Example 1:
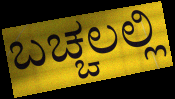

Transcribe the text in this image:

ಬಚ್ಚಲಲ್ಲಿ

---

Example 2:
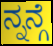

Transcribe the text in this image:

ನ್ನನ್ಗೆ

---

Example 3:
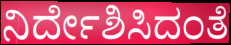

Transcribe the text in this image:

ನಿರ್ದೇಶಿಸಿದಂತೆ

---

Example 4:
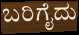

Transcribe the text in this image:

ಬರಿಗೈದು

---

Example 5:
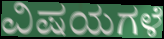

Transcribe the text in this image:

ವಿಷಯಗಳೆ